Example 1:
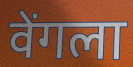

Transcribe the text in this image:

वेंगला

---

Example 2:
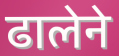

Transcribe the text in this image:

ढालेने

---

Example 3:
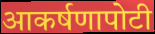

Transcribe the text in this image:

आकर्षणापोटी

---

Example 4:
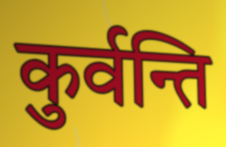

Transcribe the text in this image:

कुर्वन्ति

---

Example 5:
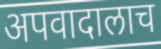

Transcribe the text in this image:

अपवादालाच